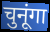
चुनूंगा